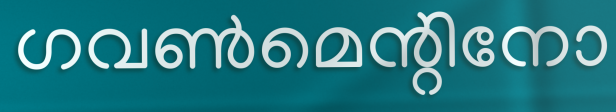
ഗവൺമെന്റിനോ